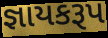
જ્ઞાયકરૂપ